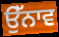
ਉੱਨਾਵ